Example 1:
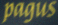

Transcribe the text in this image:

pagus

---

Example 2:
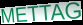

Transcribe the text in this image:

METTAG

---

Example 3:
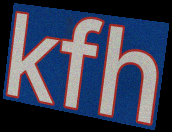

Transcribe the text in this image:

kfh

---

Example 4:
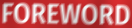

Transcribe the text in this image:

FOREWORD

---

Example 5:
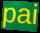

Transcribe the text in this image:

pai